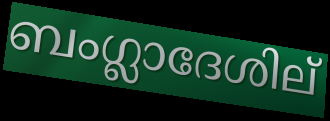
ബംഗ്ലാദേശില്